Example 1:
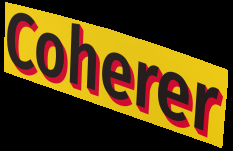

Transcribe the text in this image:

Coherer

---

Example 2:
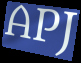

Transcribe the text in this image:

APJ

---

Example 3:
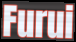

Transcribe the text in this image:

Furui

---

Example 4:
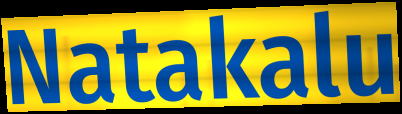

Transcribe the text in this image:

Natakalu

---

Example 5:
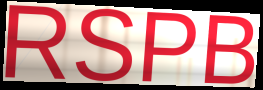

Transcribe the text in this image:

RSPB